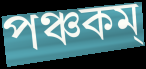
পঞ্চকম্